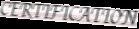
CERTIFICATION